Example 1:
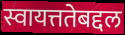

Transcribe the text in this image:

स्वायत्ततेबद्दल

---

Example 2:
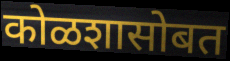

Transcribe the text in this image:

कोळशासोबत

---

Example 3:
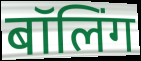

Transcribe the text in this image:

बॉलिंग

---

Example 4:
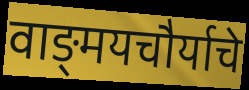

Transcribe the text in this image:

वाङ्मयचौर्याचे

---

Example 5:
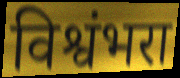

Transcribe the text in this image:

विश्वंभरा